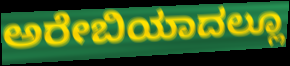
ಅರೇಬಿಯಾದಲ್ಲೂ